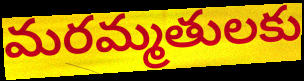
మరమ్మతులకు